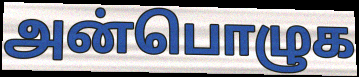
அன்பொழுக